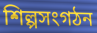
শিল্পসংগঠন